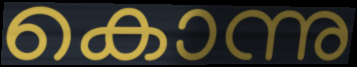
കൊന്നു